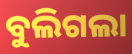
ବୁଲିଗଲା